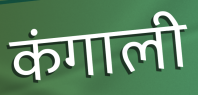
कंगाली